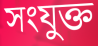
সংযুক্ত